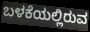
ಬಳಕೆಯಲ್ಲಿರುವ